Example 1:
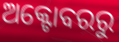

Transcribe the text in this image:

ଅକ୍ଟୋବରରୁ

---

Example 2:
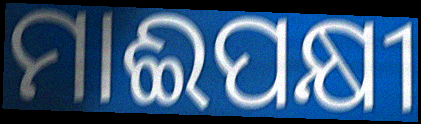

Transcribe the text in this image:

ମାଈପକ୍ଷୀ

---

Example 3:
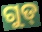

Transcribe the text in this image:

ଗୁଡ୍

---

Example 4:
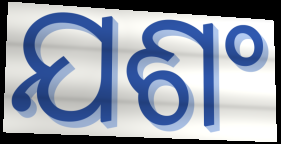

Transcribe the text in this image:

ଯଶଂ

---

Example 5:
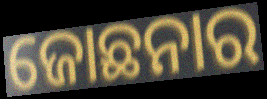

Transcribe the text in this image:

ଜୋଛନାର